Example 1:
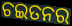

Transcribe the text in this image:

ଚଇତନର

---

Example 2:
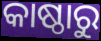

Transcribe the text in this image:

କାଷ୍ଠାରୁ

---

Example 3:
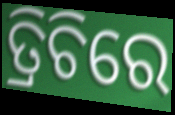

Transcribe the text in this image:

ତ୍ରିଚିରେ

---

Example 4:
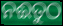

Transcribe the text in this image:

ନଈତୁଠ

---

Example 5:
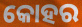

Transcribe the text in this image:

କୋହର